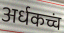
अर्धकच्चं